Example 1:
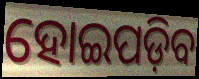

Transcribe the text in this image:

ହୋଇପଡ଼ିବ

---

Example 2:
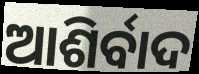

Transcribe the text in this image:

ଆଶିର୍ବାଦ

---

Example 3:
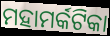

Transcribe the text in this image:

ମହାମର୍କଟିକା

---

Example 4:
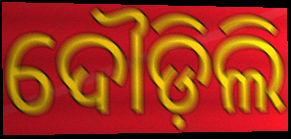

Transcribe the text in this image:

ଦୌଡ଼ିଲି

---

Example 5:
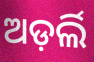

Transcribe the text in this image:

ଅଡ଼ର୍ଲି